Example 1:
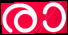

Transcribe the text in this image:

രാ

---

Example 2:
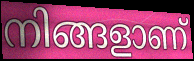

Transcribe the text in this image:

നിങ്ങളാണ്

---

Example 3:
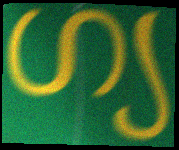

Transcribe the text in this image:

ഗ്യ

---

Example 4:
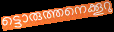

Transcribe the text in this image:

ട്ടൊരുത്തനെക്കൂറു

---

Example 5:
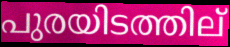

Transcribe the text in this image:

പുരയിടത്തില്